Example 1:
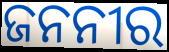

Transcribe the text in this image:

ଜନନୀର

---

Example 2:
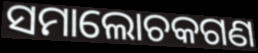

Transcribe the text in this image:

ସମାଲୋଚକଗଣ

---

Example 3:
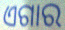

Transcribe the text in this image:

ଏଗାର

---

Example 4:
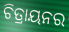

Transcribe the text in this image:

ଚିତ୍ରାୟନର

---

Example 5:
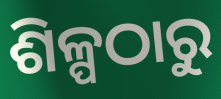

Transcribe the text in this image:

ଶିଳ୍ପଠାରୁ